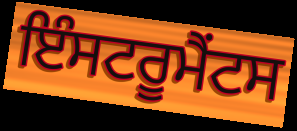
ਇੰਸਟਰੂਮੈਂਟਸ